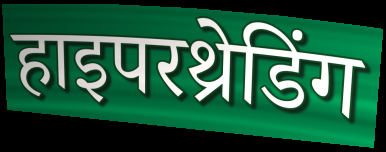
हाइपरथ्रेडिंग